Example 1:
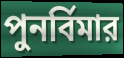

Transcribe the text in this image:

পুনর্বিমার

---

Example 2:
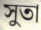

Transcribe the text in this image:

সুতা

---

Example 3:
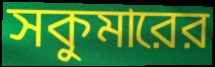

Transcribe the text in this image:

সকুমারের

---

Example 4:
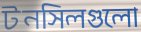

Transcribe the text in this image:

টনসিলগুলো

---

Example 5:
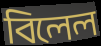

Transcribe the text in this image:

বিলেল